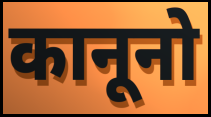
कानूनो